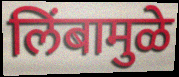
लिंबामुळे